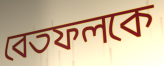
বেতফলকে